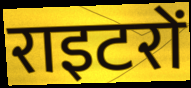
राइटरों